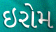
ઇરોમ